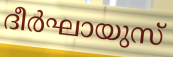
ദീർഘായുസ്